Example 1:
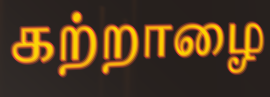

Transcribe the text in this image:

கற்றாழை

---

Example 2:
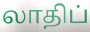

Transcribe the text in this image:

லாதிப்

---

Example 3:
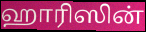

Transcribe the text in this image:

ஹாரிஸின்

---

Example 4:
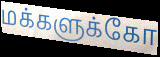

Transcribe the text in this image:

மக்களுக்கோ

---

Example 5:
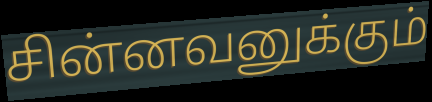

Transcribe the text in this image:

சின்னவனுக்கும்